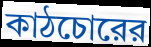
কাঠচোরের